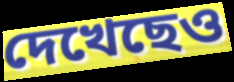
দেখেছেও